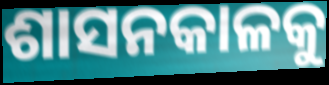
ଶାସନକାଳକୁ